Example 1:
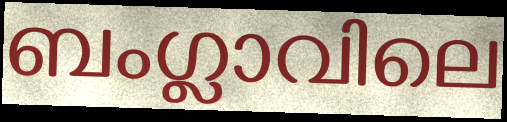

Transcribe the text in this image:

ബംഗ്ലാവിലെ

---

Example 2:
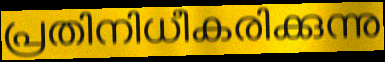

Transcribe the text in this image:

പ്രതിനിധീകരിക്കുന്നു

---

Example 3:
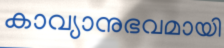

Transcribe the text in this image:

കാവ്യാനുഭവമായി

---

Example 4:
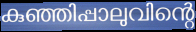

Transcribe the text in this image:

കുഞ്ഞിപ്പാലുവിന്റെ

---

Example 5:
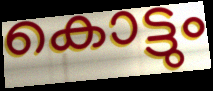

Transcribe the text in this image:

കൊട്ടും